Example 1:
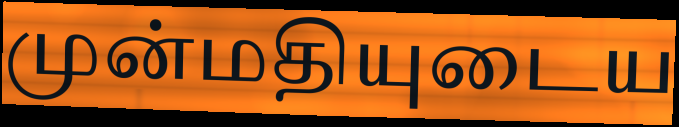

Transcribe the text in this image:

முன்மதியுடைய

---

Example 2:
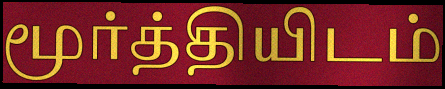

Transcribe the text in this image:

மூர்த்தியிடம்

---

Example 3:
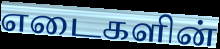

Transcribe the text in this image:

எடைகளின்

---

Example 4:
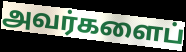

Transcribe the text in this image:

அவர்களைப்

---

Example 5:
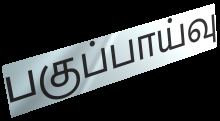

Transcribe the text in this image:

பகுப்பாய்வு